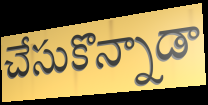
చేసుకొన్నాడా